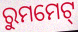
ରୁମମେଟ୍